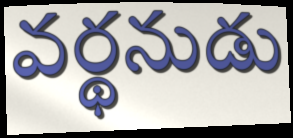
వర్థనుడు